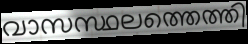
വാസസ്ഥലത്തെത്തി